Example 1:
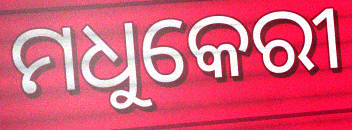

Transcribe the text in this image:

ମଧୁକେରୀ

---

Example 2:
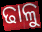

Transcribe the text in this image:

ଢାଳୁ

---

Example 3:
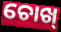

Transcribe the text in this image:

ଚୋଖ୍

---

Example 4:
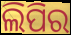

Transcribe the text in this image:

ଲିପିର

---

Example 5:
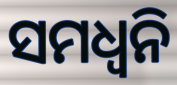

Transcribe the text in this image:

ସମଧ୍ୱନି